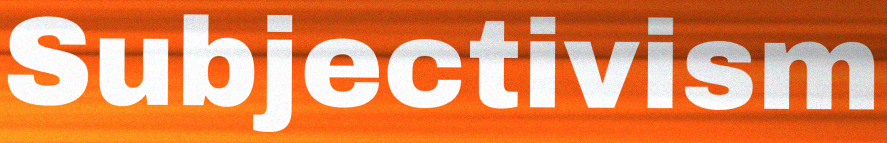
Subjectivism